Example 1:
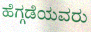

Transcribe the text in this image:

ಹೆಗ್ಗಡೆಯವರು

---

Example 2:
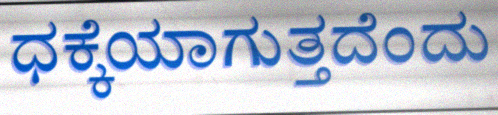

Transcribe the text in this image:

ಧಕ್ಕೆಯಾಗುತ್ತದೆಂದು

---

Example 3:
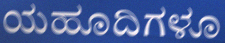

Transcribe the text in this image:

ಯಹೂದಿಗಳೂ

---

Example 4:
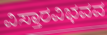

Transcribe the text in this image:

ವಿಸ್ತಾರವಿಭವವ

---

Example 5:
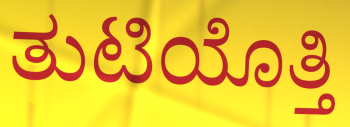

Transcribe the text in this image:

ತುಟಿಯೊತ್ತಿ